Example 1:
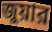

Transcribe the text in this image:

জুয়ার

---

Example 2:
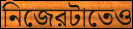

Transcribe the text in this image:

নিজেরটাতেও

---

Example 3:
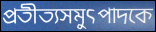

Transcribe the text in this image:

প্রতীত্যসমুৎপাদকে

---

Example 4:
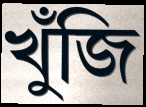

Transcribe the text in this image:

খুঁজি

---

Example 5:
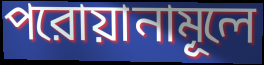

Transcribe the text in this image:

পরোয়ানামূলে